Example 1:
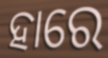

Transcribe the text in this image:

ହାରେ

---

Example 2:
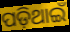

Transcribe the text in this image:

ପଡ଼ିଥାଇଁ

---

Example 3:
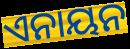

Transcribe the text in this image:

ଏନାୟନ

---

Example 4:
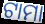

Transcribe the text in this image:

ଟାମା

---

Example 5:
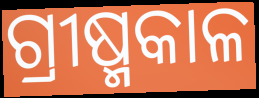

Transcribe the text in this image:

ଗ୍ରୀଷ୍ମକାଳ